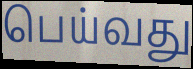
பெய்வது